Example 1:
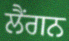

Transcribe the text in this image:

ਲੈਂਗਨ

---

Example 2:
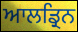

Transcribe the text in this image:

ਆਲਡ੍ਰਿਨ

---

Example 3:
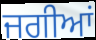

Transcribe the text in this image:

ਜਗੀਆਂ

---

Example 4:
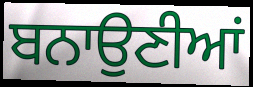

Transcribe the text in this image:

ਬਨਾਉਣੀਆਂ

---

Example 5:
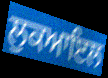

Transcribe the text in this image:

ਲੁਕਆਇਲ